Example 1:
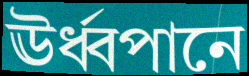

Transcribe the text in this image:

ঊর্ধ্বপানে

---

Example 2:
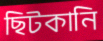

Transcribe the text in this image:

ছিটকানি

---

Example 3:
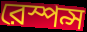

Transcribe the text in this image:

রেস্পন্স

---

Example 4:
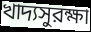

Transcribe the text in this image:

খাদ্যসুরক্ষা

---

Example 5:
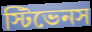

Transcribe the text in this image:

স্টিভেনস